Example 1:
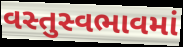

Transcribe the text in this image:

વસ્તુસ્વભાવમાં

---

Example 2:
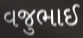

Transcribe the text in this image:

વજુભાઈ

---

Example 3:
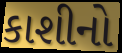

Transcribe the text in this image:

કાશીનો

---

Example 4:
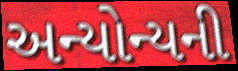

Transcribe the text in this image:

અન્યોન્યની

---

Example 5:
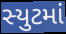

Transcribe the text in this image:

સ્યુટમાં